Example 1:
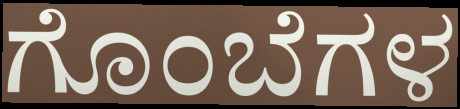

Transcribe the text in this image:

ಗೊಂಬೆಗಳ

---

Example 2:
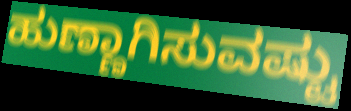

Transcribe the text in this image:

ಹುಣ್ಣಾಗಿಸುವಷ್ಟು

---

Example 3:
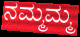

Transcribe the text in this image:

ನಮ್ಮಮ್ಮ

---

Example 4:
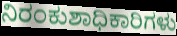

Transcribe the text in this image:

ನಿರಂಕುಶಾಧಿಕಾರಿಗಳು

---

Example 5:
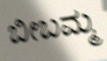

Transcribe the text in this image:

ಬೀಬಮ್ಮ